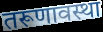
तरूणावस्था